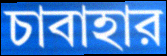
চাবাহার